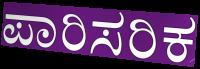
ಪಾರಿಸರಿಕ